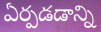
ఏర్పడడాన్ని